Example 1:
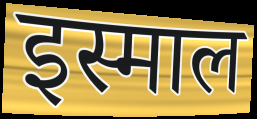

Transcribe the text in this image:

इस्माल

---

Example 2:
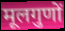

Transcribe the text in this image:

मूलगुणों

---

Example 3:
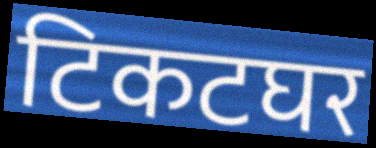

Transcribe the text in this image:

टिकटघर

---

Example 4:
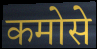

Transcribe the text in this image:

कमोसे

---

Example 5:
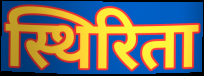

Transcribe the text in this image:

स्थिरिता